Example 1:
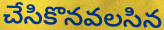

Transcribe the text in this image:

చేసికొనవలసిన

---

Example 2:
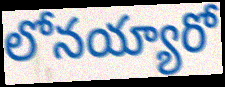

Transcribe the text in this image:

లోనయ్యారో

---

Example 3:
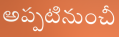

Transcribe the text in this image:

అప్పటినుంచీ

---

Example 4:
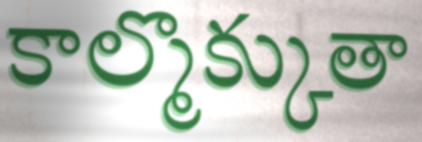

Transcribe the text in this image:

కాల్మొక్కుతా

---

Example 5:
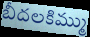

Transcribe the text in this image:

బీదలకిమ్ము